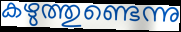
കഴുത്തുണ്ടെന്നു